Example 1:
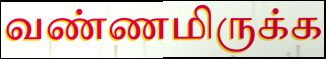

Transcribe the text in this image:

வண்ணமிருக்க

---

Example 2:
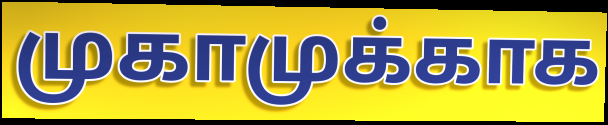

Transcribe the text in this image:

முகாமுக்காக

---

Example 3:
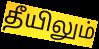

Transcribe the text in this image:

தீயிலும்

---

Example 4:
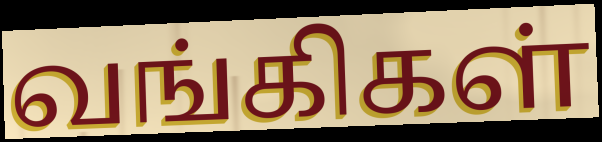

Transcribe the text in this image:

வங்கிகள்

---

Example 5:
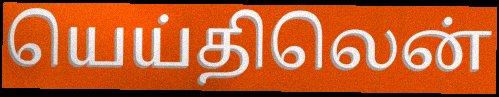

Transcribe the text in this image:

யெய்திலென்